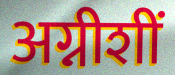
अग्नीशीं